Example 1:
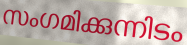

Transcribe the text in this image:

സംഗമിക്കുന്നിടം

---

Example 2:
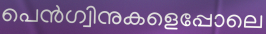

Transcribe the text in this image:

പെൻഗ്വിനുകളെപ്പോലെ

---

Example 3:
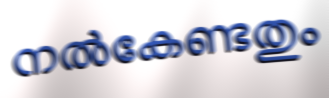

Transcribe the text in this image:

നൽകേണ്ടതും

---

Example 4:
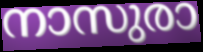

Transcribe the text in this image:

നാസുരാ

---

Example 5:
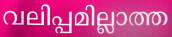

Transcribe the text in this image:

വലിപ്പമില്ലാത്ത